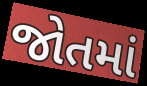
જોતમાં